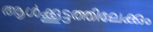
ആൾക്കൂട്ടത്തിലേക്കും